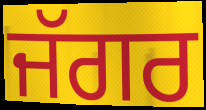
ਜੱਗਰ